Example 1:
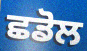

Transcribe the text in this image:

ਛਡੋਲ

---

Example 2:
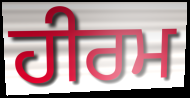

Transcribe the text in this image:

ਹੀਰਮ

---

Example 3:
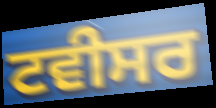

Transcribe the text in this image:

ਟਵੀਸਰ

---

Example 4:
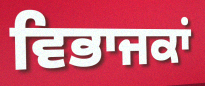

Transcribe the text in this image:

ਵਿਭਾਜਕਾਂ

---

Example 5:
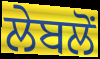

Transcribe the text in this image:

ਲੇਬਲੋਂ